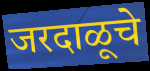
जरदाळूचे